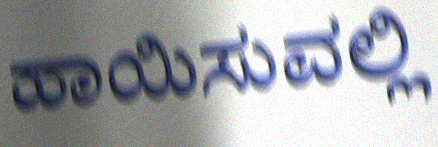
ಹಾಯಿಸುವಲ್ಲಿ